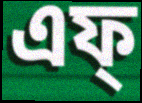
এফ্